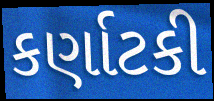
કર્ણાટકી